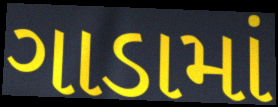
ગાડામાં